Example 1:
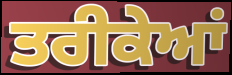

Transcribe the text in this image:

ਤਰੀਕੇਆਂ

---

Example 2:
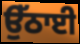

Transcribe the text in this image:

ਉੱਠਾਈ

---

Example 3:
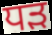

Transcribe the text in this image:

ਧੜ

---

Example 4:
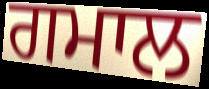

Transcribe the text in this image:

ਗਮਾਲ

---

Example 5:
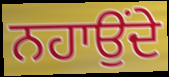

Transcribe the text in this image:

ਨਹਾਉਂਦੇ